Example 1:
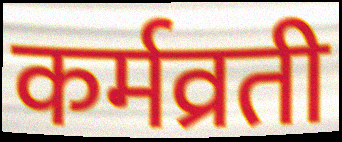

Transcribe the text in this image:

कर्मव्रती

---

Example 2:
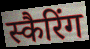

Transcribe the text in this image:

स्कैरिंग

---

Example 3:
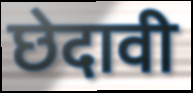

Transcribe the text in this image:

छेदावी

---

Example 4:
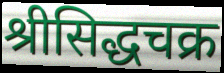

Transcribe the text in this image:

श्रीसिद्धचक्र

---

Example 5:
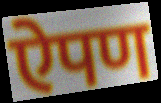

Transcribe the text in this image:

ऐपण